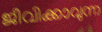
ജീവിക്കാവുന്ന